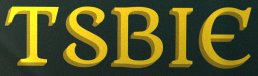
TSBIE